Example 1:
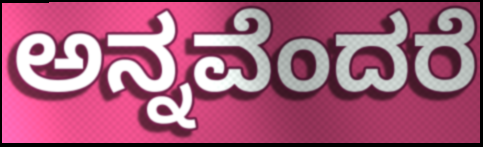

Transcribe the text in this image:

ಅನ್ನವೆಂದರೆ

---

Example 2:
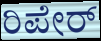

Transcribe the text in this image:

ರಿಪೇರ್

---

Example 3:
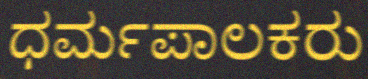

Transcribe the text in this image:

ಧರ್ಮಪಾಲಕರು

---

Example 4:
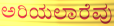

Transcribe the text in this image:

ಅರಿಯಲಾರೆವು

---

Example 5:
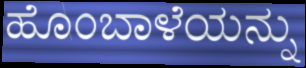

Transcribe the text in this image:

ಹೊಂಬಾಳೆಯನ್ನು